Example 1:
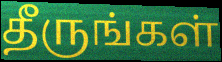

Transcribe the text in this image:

தீருங்கள்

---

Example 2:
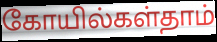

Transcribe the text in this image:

கோயில்கள்தாம்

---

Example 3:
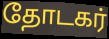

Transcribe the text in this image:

தோடகர்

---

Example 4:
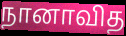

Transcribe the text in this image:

நானாவித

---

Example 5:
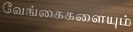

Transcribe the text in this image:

வேங்கைகளையும்